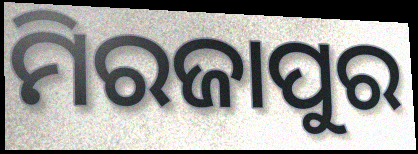
ମିରଜାପୁର